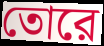
তোরে